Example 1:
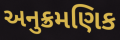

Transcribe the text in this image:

અનુક્રમણિક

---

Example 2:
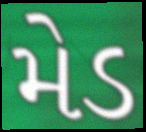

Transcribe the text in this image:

મેડ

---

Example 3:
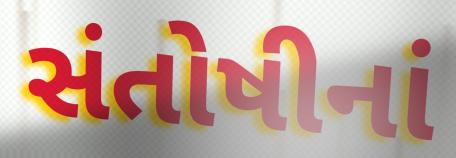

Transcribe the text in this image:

સંતોષીનાં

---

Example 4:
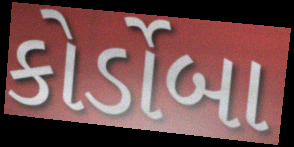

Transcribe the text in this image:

કોર્ડોબા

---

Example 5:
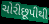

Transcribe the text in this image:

ચોરીછૂપીથી